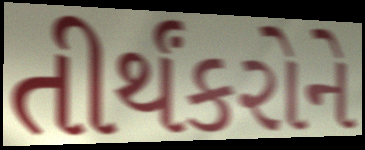
તીર્થંકરોને